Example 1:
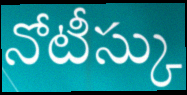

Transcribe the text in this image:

నోటీస్కు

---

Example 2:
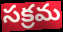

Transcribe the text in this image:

సక్రమ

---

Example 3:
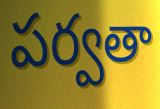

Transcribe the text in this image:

పర్వతా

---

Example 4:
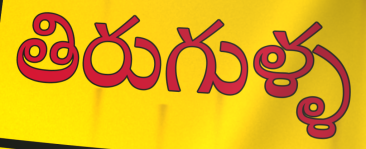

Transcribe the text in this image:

తిరుగుళ్ళ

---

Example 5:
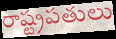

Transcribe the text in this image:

రాష్ట్రపతులు